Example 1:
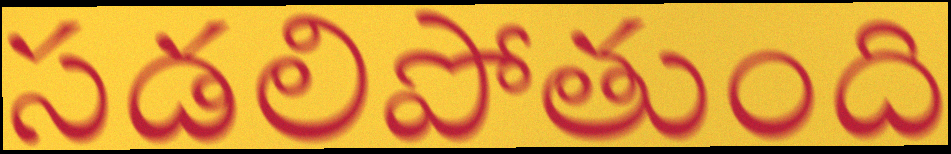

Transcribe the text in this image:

సడలిపోతుంది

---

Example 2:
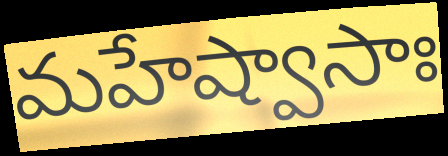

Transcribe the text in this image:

మహేష్వాసాః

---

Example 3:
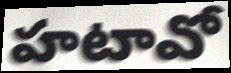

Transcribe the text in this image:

హటావో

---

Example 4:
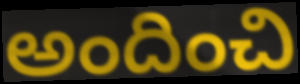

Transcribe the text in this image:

అందించి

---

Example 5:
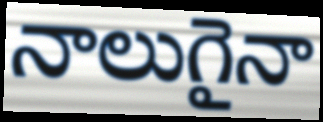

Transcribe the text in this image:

నాలుగైనా